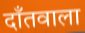
दाँतवाला